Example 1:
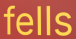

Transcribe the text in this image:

fells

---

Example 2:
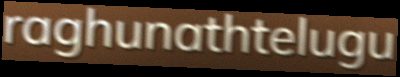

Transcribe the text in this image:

raghunathtelugu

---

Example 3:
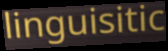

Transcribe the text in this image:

linguisitic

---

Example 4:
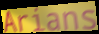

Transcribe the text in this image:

Arians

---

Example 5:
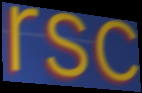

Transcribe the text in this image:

rsc